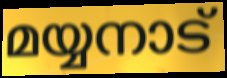
മയ്യനാട്